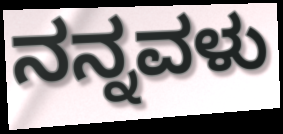
ನನ್ನವಳು